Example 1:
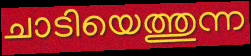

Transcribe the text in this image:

ചാടിയെത്തുന്ന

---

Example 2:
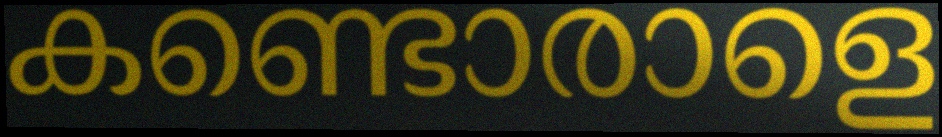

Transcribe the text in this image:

കണ്ടൊരാളെ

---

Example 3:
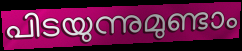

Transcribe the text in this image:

പിടയുന്നുമുണ്ടാം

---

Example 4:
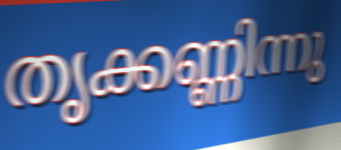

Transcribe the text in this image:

തൃക്കണ്ണിന്നു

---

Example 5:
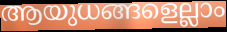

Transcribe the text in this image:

ആയുധങ്ങളെല്ലാം